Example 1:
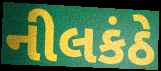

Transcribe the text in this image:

નીલકંઠે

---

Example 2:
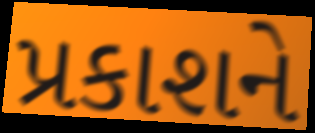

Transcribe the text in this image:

પ્રકાશને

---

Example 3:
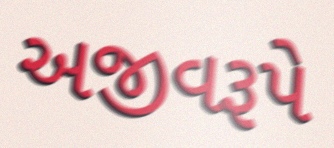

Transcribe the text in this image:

અજીવરૂપે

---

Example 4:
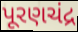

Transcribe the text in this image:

પૂરણચંદ્ર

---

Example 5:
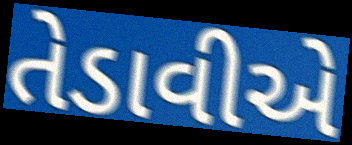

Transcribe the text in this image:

તેડાવીએ